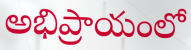
అభిప్రాయంలో